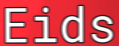
Eids